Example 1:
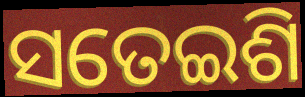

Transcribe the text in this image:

ସତେଇଶି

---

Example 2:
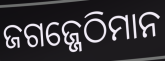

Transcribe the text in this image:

ଜଗଜ୍ଜେଠିମାନ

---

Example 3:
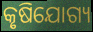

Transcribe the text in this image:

କୃଷିଯୋଗ୍ୟ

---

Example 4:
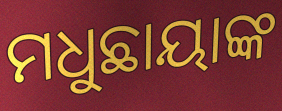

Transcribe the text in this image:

ମଧୁଛାୟାଙ୍କ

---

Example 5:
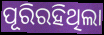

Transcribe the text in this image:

ପୂରିରହିଥିଲା